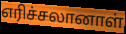
எரிச்சலானாள்